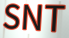
SNT